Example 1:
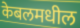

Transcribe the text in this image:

केबलमधील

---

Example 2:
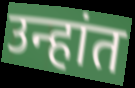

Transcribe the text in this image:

उन्हांत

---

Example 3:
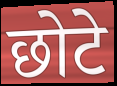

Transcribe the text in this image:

छोटे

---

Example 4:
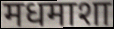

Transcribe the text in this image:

मधमाशा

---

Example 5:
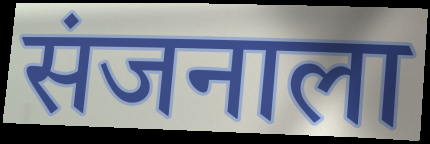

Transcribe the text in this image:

संजनाला